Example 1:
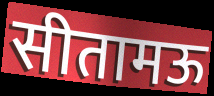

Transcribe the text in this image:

सीतामऊ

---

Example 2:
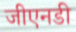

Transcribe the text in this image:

जीएनडी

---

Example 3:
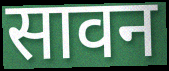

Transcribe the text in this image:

सावन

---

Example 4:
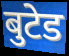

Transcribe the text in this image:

बुटेड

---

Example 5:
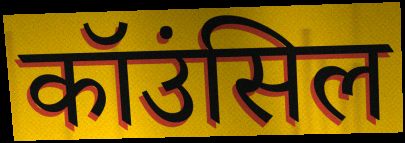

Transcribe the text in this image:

कॉउंसिल